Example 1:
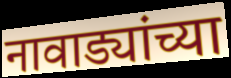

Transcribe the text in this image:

नावाड्यांच्या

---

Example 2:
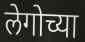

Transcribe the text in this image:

लेगोच्या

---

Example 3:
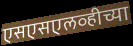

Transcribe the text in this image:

एसएसएलव्हीच्या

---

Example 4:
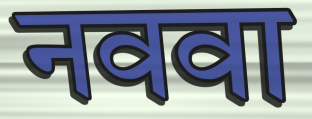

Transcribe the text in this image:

नववा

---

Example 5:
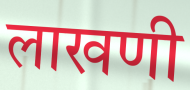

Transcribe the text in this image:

लाखणी